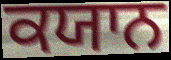
ਕਯਾਨ